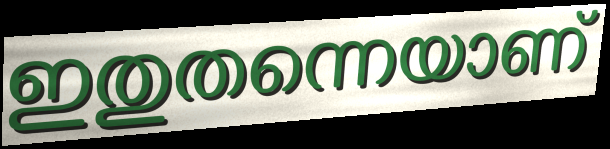
ഇതുതന്നെയാണ്